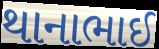
થાનાભાઈ